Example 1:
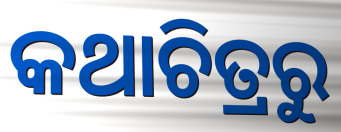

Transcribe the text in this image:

କଥାଚିତ୍ରରୁ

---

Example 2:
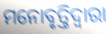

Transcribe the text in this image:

ମନୋବୃତ୍ତିଦ୍ଵାରା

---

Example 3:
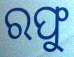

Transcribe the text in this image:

ରଫୁ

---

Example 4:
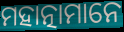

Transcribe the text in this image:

ମହାତ୍ନାମାନେ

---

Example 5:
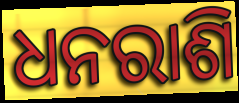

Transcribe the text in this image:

ଧନରାଶି